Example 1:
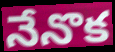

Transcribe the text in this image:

నేనొక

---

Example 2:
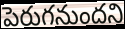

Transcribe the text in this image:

పెరుగనుందని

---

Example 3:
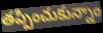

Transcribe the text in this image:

తప్పించుకున్నాం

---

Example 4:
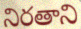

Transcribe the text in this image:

నిరతాని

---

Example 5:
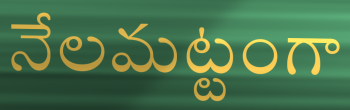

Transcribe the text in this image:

నేలమట్టంగా